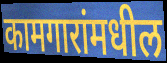
कामगारांमधील